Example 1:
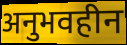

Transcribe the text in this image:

अनुभवहीन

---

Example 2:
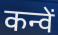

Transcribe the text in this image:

कन्वें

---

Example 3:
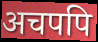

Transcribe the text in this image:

अचपपि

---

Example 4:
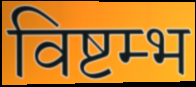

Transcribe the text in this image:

विष्टम्भ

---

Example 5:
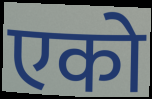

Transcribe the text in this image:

एको